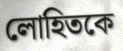
লোহিতকে